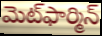
మెట్‌ఫార్మిన్